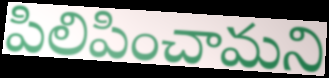
పిలిపించామని